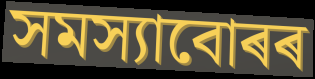
সমস্যাবোৰৰ